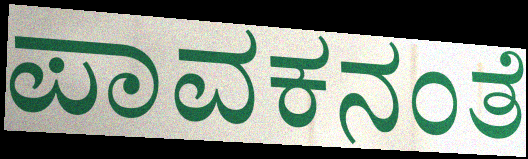
ಪಾವಕನಂತೆ